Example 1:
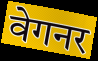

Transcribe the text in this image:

वेगनर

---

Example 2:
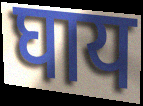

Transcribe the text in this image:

घाय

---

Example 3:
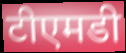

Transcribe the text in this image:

टीएमडी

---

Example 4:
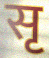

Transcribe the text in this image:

सृ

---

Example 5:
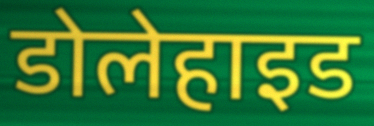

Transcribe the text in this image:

डोलेहाइड